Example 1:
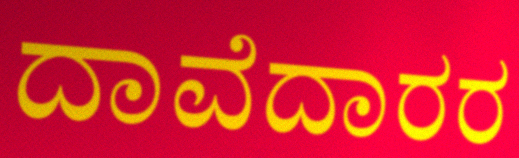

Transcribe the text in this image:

ದಾವೆದಾರರ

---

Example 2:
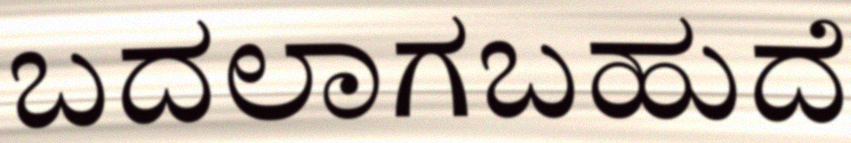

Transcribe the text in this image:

ಬದಲಾಗಬಹುದೆ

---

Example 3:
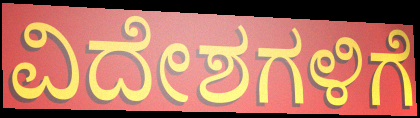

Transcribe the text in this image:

ವಿದೇಶಗಳಿಗೆ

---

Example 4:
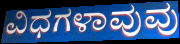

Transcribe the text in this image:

ವಿಧಗಳಾವುವು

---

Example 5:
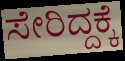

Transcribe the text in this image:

ಸೇರಿದ್ದಕ್ಕೆ